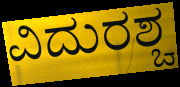
ವಿದುರಶ್ಚ